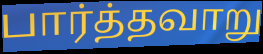
பார்த்தவாறு